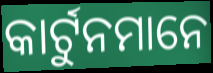
କାର୍ଟୁନମାନେ